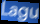
Lagu